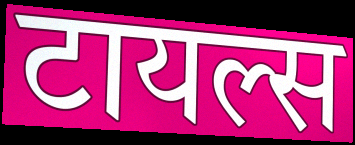
टायल्स